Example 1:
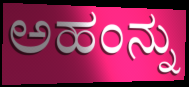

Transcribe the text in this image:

ಅಹಂನ್ನು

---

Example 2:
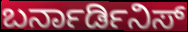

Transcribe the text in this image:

ಬರ್ನಾರ್ಡಿನಿಸ್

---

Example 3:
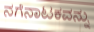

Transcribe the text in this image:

ನಗೆನಾಟಕವನ್ನು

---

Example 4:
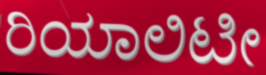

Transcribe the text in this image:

ರಿಯಾಲಿಟೀ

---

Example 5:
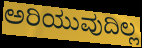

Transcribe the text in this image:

ಅರಿಯುವುದಿಲ್ಲ